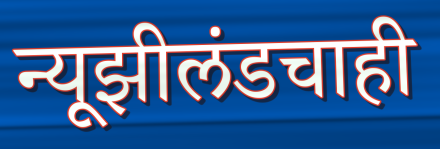
न्यूझीलंडचाही